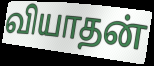
வியாதன்